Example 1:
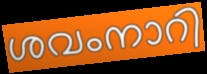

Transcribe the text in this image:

ശവംനാറി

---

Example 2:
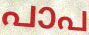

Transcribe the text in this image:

പാപ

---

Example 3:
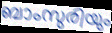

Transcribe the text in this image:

ബാംസുരിയും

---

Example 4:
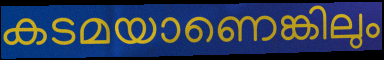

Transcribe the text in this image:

കടമയാണെങ്കിലും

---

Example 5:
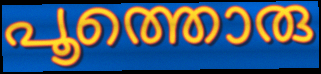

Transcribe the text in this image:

പൂത്തൊരു